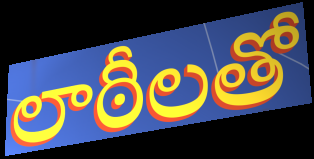
లాఠీలతో